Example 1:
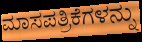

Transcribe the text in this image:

ಮಾಸಪತ್ರಿಕೆಗಳನ್ನು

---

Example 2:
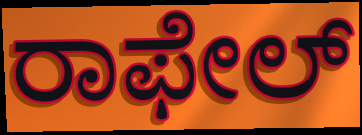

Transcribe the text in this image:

ರಾಫೇಲ್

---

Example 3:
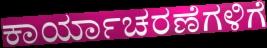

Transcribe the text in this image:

ಕಾರ್ಯಾಚರಣೆಗಳಿಗೆ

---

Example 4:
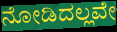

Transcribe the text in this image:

ನೋಡಿದಲ್ಲವೇ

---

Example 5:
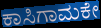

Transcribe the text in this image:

ಕಾಸಿಗಾಮಕೇ